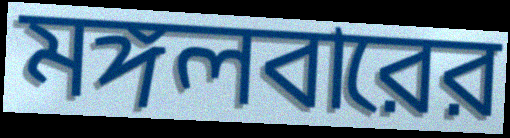
মঙ্গলবারের